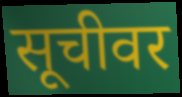
सूचीवर